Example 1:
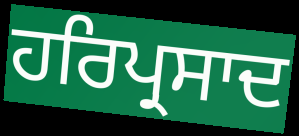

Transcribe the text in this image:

ਹਰਿਪ੍ਰਸਾਦ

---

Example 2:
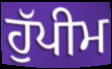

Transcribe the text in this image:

ਹੁੱਪੀਮ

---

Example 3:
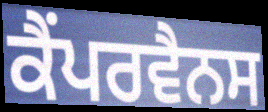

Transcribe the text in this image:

ਕੈਂਪਰਵੈਨਸ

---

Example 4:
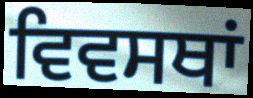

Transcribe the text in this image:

ਵਿਵਸਥਾਂ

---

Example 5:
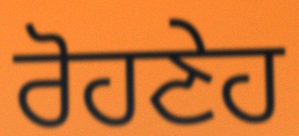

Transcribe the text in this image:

ਰੋਹਣੇਹ